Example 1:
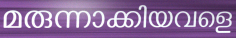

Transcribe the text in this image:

മരുന്നാക്കിയവളെ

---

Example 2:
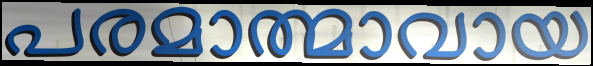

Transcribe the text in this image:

പരമാത്മാവായ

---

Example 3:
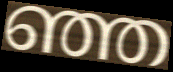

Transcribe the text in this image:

ഞ്ഞ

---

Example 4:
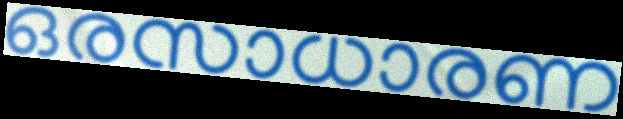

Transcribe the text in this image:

ഒരസാധാരണ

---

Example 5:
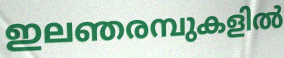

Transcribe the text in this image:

ഇലഞരമ്പുകളിൽ